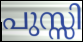
പുസ്സി